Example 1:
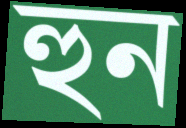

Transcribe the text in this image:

হুন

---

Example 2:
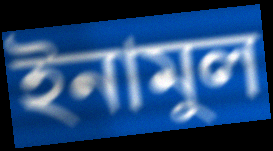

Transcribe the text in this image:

ইনামুল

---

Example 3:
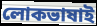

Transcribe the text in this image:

লোকভাষাই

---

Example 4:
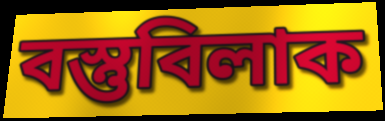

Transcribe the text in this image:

বস্তুবিলাক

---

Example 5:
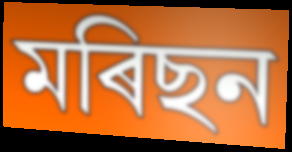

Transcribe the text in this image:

মৰিছন